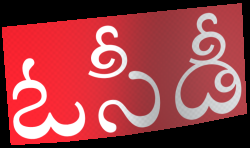
ఓసీడీ